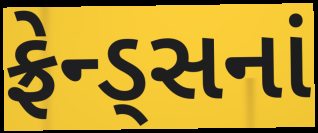
ફ્રેન્ડ્સનાં